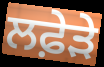
ਲਫ਼ੇੜੇ